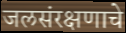
जलसंरक्षणाचे